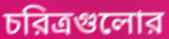
চরিত্রগুলোর